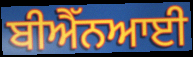
ਬੀਐੱਨਆਈ